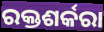
ରକ୍ତଶର୍କରା